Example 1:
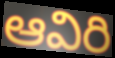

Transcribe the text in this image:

ఆవిరి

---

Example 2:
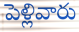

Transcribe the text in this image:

పెళ్లివారు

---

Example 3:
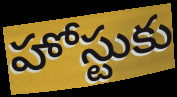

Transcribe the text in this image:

హోస్టుకు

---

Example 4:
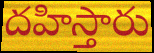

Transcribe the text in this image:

దహిస్తారు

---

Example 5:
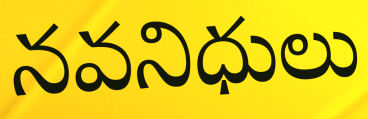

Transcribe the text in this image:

నవనిధులు